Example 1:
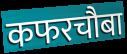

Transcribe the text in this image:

कफरचौबा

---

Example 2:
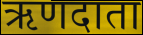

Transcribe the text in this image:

ऋणदाता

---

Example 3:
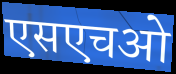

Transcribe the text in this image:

एसएचओ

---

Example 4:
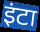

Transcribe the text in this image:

इंटा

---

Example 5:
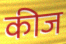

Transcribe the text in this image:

कीज